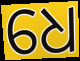
ଧେ